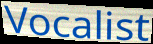
Vocalist